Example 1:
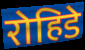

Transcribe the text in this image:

रोहिडे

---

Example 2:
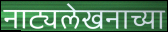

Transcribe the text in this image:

नाट्यलेखनाच्या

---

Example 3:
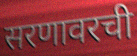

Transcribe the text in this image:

सरणावरची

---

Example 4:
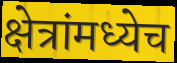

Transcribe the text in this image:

क्षेत्रांमध्येच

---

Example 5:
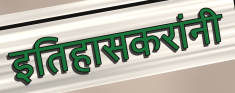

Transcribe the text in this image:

इतिहासकरांनी